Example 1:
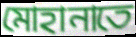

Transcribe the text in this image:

মোহানাতে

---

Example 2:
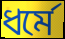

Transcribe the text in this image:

ধর্মে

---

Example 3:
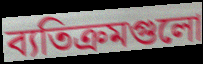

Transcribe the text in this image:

ব্যতিক্রমগুলো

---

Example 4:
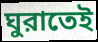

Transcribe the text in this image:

ঘুরাতেই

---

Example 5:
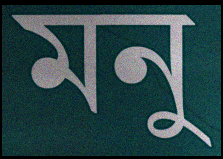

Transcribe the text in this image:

মনু